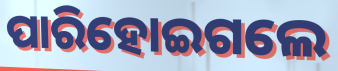
ପାରିହୋଇଗଲେ